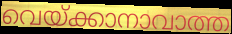
വെയ്ക്കാനാവാത്ത